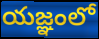
యజ్ఞంలో